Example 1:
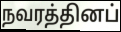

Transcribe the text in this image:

நவரத்தினப்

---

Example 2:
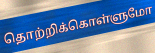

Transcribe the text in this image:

தொற்றிக்கொள்ளுமோ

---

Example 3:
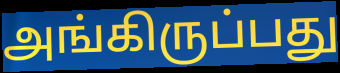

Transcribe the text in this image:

அங்கிருப்பது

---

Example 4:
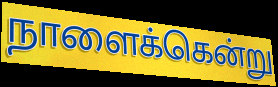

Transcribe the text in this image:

நாளைக்கென்று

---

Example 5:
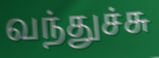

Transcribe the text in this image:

வந்துச்சு